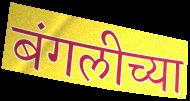
बंगलीच्या